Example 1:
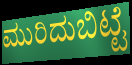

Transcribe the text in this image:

ಮುರಿದುಬಿಟ್ಟೆ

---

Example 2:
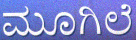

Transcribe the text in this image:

ಮೂಗಿಲೆ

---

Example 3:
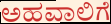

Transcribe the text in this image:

ಅಹವಾಲಿಗೆ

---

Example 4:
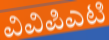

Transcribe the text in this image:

ವಿವಿಪಿಎಟಿ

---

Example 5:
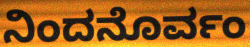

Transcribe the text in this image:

ನಿಂದನೊರ್ವಂ